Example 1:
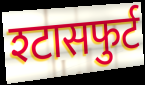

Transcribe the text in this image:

श्टासफुर्ट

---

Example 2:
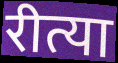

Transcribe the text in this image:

रीत्या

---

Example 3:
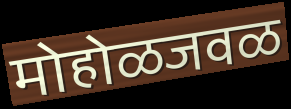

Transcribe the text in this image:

मोहोळजवळ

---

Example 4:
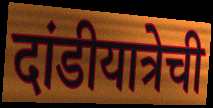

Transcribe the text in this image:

दांडीयात्रेची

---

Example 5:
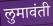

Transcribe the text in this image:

लुमावंती